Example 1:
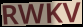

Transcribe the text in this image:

RWKV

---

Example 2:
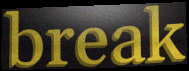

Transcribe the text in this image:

break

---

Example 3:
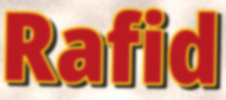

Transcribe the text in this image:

Rafid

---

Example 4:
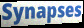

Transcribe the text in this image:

Synapses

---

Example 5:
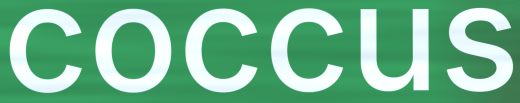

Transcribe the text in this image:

coccus